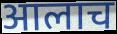
आलाच